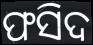
ଫସିଦ